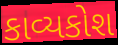
કાવ્યકોશ